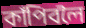
কাঁপিবলৈ